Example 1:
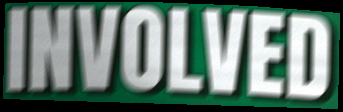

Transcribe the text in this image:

INVOLVED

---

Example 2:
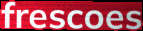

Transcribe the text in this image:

frescoes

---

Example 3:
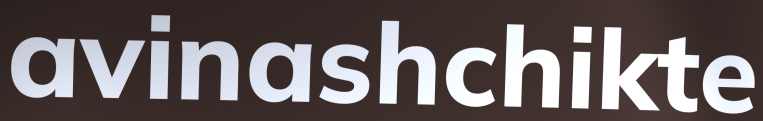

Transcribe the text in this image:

avinashchikte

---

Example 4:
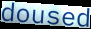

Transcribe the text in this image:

doused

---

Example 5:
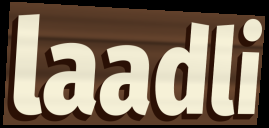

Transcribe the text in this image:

laadli